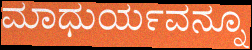
ಮಾಧುರ್ಯವನ್ನೂ